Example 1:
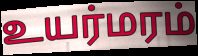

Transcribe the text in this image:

உயர்மரம்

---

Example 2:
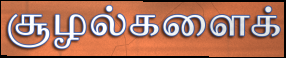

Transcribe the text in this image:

சூழல்களைக்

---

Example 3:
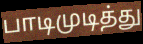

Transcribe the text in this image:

பாடிமுடித்து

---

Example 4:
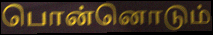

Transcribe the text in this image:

பொன்னொடும்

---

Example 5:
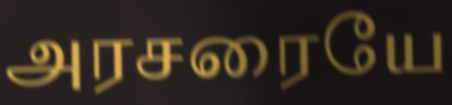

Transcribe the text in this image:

அரசரையே